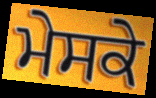
ਮੇਸਕੇ